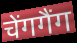
चेंगगैंग